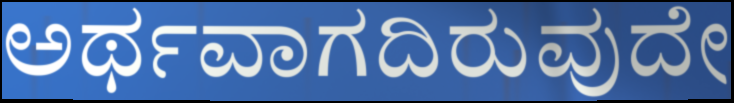
ಅರ್ಥವಾಗದಿರುವುದೇ